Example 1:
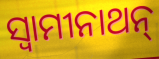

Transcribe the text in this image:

ସ୍ୱାମୀନାଥନ୍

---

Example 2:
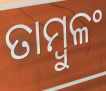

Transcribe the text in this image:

ତାମ୍ବୁଳଂ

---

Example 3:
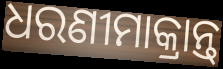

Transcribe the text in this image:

ଧରଣୀମାକ୍ରାନ୍ତ୍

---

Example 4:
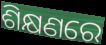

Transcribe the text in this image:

ଶିକ୍ଷଣରେ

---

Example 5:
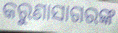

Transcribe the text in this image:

କରୁଣାସାଗରଙ୍କ